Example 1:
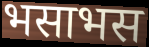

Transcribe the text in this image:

भसाभस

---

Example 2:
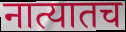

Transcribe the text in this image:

नात्यातच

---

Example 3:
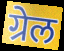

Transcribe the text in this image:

ग्रेल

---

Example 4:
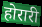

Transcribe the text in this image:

होरारी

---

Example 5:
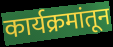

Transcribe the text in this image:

कार्यक्रमांतून